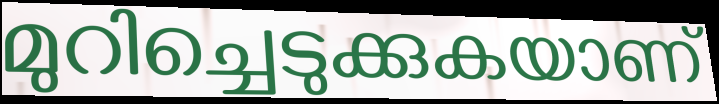
മുറിച്ചെടുക്കുകയാണ്